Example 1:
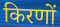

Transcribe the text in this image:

किरणों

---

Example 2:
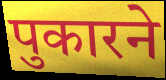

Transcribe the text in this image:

पुकारने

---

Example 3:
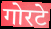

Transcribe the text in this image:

गोरटे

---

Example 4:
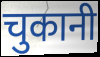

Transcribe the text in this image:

चुकानी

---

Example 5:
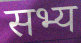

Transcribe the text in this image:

सभ्य